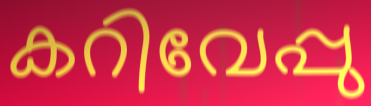
കറിവേപ്പു